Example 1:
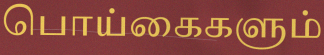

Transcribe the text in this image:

பொய்கைகளும்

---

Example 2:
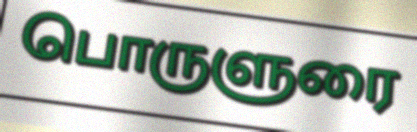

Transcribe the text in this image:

பொருளுரை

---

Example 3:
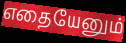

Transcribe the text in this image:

எதையேனும்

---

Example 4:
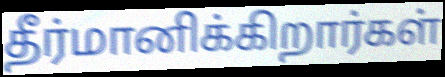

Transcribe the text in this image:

தீர்மானிக்கிறார்கள்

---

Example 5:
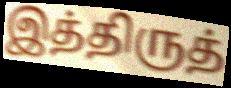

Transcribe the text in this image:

இத்திருத்